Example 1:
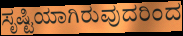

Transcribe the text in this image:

ಸೃಷ್ಟಿಯಾಗಿರುವುದರಿಂದ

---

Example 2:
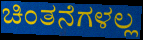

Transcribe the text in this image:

ಚಿಂತನೆಗಳಲ್ಲ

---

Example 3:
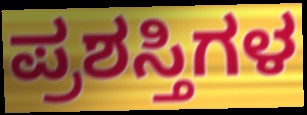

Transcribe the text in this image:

ಪ್ರಶಸ್ತಿಗಳ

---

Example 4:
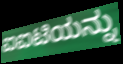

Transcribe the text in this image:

ಐಐಟಿಯನ್ನು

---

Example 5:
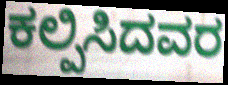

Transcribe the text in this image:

ಕಲ್ಪಿಸಿದವರ